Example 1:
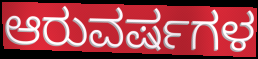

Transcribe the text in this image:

ಆರುವರ್ಷಗಳ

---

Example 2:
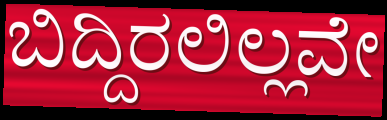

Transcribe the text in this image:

ಬಿದ್ದಿರಲಿಲ್ಲವೇ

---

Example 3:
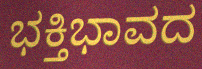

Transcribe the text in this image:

ಭಕ್ತಿಭಾವದ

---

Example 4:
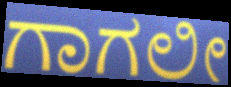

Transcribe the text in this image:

ಗಾಗಲೀ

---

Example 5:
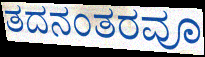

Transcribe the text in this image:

ತದನಂತರವೂ